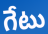
గేటు